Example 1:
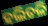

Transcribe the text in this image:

ହଲିଚଳି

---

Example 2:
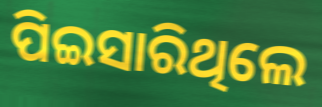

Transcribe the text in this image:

ପିଇସାରିଥିଲେ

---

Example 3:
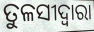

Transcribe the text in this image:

ତୁଳସୀଦ୍ବାରା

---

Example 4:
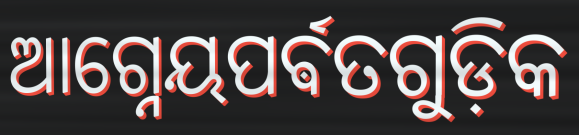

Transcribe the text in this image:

ଆଗ୍ନେୟପର୍ଵତଗୁଡ଼ିକ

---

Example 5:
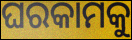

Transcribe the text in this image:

ଘରକାମକୁ